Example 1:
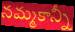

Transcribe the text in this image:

నమ్మకాన్నీ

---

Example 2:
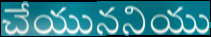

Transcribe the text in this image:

చేయుననియు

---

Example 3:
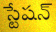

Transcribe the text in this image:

స్టేషన్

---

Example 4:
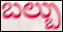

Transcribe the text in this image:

బల్బు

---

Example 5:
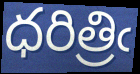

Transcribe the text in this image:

ధరిత్రిఁ